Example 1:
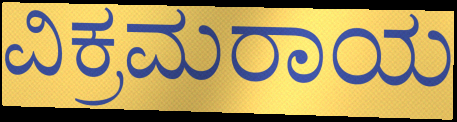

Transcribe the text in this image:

ವಿಕ್ರಮರಾಯ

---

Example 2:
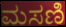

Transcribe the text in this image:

ಮಸಣಿ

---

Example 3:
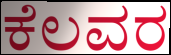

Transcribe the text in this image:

ಕೆಲವರ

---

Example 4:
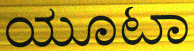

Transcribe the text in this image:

ಯೂಟಾ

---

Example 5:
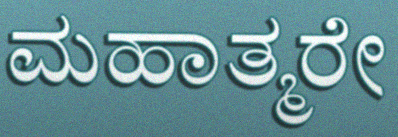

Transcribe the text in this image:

ಮಹಾತ್ಮರೇ